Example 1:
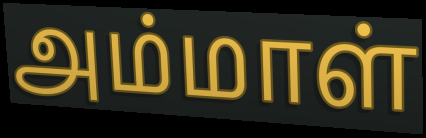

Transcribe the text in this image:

அம்மாள்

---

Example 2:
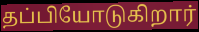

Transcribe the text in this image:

தப்பியோடுகிறார்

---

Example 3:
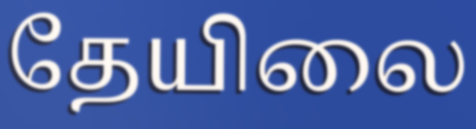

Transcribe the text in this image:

தேயிலை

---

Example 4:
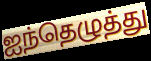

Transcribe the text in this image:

ஐந்தெழுத்து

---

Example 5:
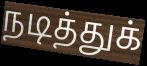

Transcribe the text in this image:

நடித்துக்